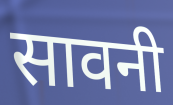
सावनी